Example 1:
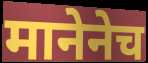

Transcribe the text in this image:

मानेनेच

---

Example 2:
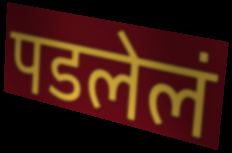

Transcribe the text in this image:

पडलेलं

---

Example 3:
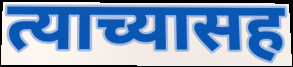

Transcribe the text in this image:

त्याच्यासह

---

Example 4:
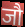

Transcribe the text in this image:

जौ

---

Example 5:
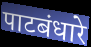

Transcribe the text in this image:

पाटबंधारे